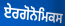
ਏਰਗੋਨੋਮਿਕਸ